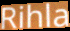
Rihla